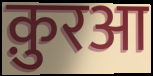
क़ुरआ